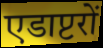
एडाप्टरों